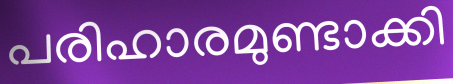
പരിഹാരമുണ്ടാക്കി